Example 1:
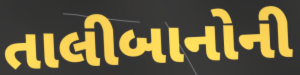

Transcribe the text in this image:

તાલીબાનોની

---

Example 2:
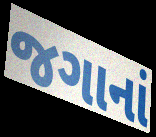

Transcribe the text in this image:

જગાનાં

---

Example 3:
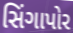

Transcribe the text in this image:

સિંગાપોર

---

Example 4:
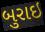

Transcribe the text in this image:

બુરાઇ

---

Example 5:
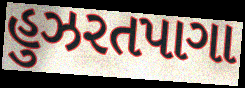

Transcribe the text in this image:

હુઝરતપાગા